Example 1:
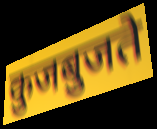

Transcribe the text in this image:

कुजबुजते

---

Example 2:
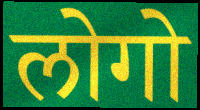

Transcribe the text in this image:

लोगो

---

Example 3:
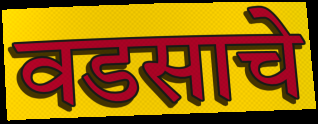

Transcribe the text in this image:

वडसाचे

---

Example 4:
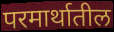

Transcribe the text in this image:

परमार्थातील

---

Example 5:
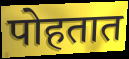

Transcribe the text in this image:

पोहतात